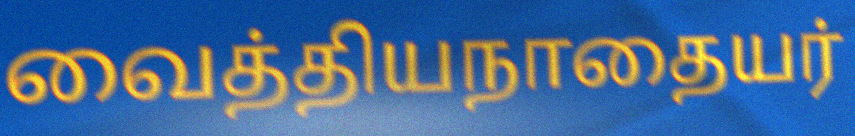
வைத்தியநாதையர்